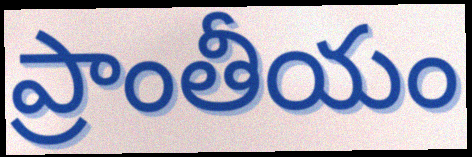
ప్రాంతీయం